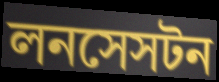
লনসেসটন